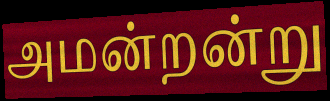
அமன்றன்று